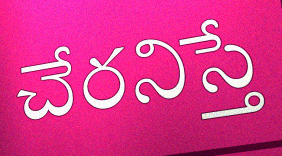
చేరనిస్తే